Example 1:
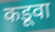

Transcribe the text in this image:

कडूवा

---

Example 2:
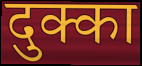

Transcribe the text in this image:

दुक्‍का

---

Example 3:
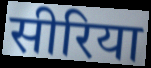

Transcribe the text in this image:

सीरिया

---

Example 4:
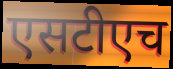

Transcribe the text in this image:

एसटीएच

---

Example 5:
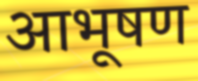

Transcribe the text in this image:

आभूषण